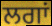
ਲਗਾਂ